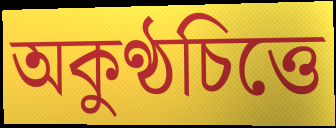
অকুণ্ঠচিত্তে